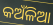
କଅଁଳିଆ